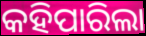
କହିପାରିଲା